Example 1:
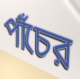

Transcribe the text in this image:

পাঁচের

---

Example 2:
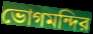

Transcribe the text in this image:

ভোগমন্দির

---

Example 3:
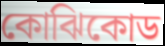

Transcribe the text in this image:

কোঝিকোড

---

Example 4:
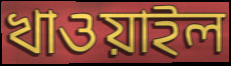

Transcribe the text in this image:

খাওয়াইল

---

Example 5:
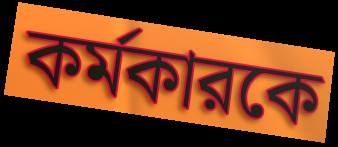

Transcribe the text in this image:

কর্মকারকে